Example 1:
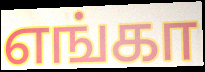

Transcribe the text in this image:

எங்கா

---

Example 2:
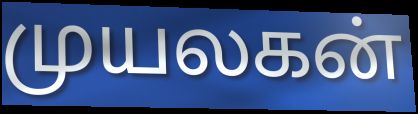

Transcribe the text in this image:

முயலகன்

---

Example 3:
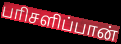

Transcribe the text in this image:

பரிசளிப்பான்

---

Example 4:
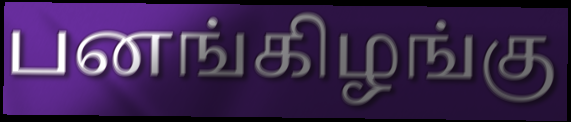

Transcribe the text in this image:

பனங்கிழங்கு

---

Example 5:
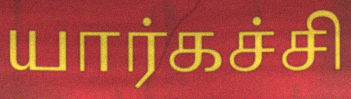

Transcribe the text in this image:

யார்கச்சி